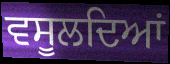
ਵਸੂਲਦਿਆਂ